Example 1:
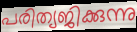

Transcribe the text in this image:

പരിത്യജിക്കുന്നു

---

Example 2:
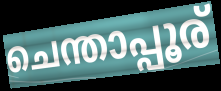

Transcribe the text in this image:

ചെന്താപ്പൂര്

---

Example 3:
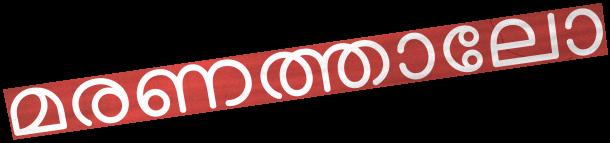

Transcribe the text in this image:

മരണത്താലോ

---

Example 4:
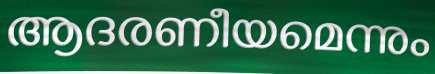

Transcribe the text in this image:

ആദരണീയമെന്നും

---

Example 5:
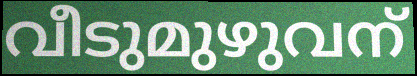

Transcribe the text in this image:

വീടുമുഴുവന്